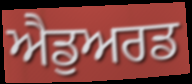
ਐਡੁਅਰਡ